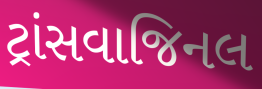
ટ્રાંસવાજિનલ